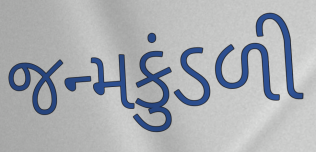
જન્મકુંડળી